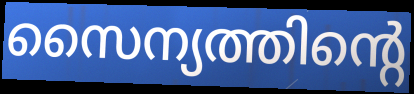
സൈന്യത്തിന്റെ